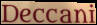
Deccani